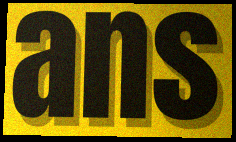
ans